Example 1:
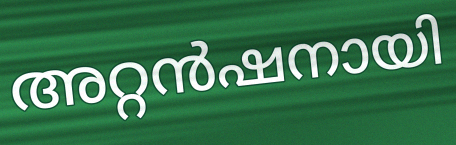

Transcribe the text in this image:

അറ്റൻഷനായി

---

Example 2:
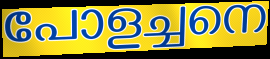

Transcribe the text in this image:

പോളച്ചനെ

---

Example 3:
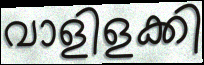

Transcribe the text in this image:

വാളിളക്കി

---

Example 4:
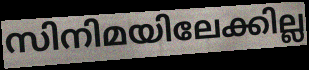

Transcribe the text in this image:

സിനിമയിലേക്കില്ല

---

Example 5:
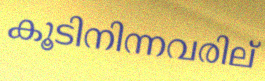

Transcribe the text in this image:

കൂടിനിന്നവരില്